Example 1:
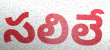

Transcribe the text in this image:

సలిలే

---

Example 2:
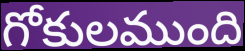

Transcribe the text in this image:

గోకులముంది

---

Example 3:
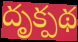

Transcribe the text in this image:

దృక్పథ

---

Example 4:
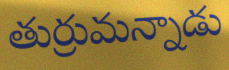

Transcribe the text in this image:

తుర్రుమన్నాడు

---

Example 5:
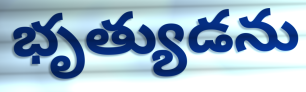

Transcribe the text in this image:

భృత్యుడను